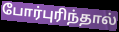
போர்புரிந்தால்